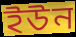
ইউন